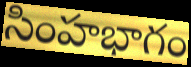
సింహభాగం